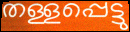
തള്ളപ്പെട്ടു